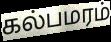
கல்பமரம்